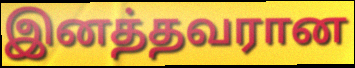
இனத்தவரான